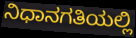
ನಿಧಾನಗತಿಯಲ್ಲಿ